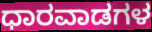
ಧಾರವಾಡಗಳ